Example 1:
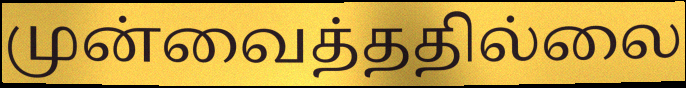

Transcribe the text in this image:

முன்வைத்ததில்லை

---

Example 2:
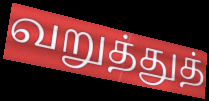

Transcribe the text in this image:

வறுத்துத்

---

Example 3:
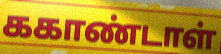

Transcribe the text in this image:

ககாண்டாள்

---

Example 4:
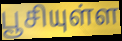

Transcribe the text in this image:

பூசியுள்ள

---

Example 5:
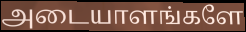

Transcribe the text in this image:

அடையாளங்களே